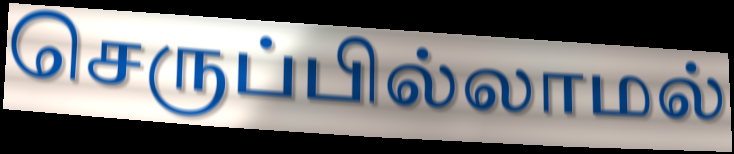
செருப்பில்லாமல்